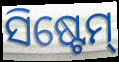
ସିଷ୍ଟେମ୍